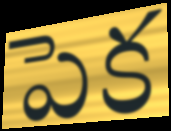
పెక